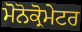
ਮੋਨੋਕ੍ਰੋਮੇਟਰ